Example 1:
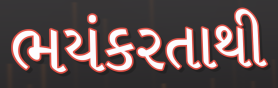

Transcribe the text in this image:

ભયંકરતાથી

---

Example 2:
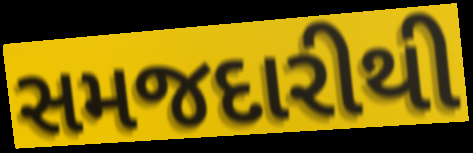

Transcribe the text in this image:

સમજદારીથી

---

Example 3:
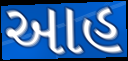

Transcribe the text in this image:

આહ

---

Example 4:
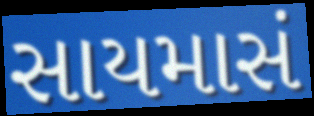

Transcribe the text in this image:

સાયમાસં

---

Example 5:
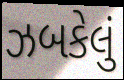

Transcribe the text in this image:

ઝબકેલું